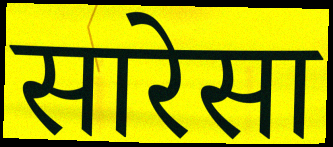
सारेसा